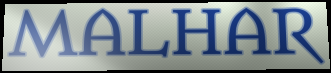
MALHAR